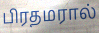
பிரதமரால்